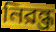
নিরন্ধ্র